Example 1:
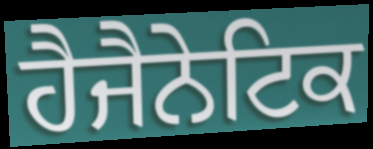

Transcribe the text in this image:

ਹੈਜੈਨੇਟਿਕ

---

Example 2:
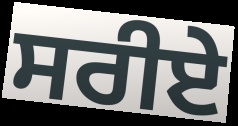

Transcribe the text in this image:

ਸਰੀਏ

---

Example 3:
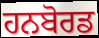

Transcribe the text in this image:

ਹਨਬੋਰਡ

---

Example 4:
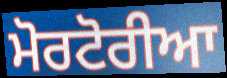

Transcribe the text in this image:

ਮੋਰਟੋਰੀਆ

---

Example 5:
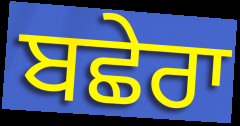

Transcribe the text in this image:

ਬਛੇਰਾ